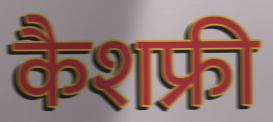
कैशफ्री